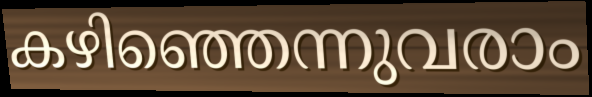
കഴിഞ്ഞെന്നുവരാം